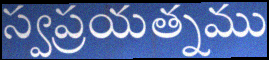
స్వప్రయత్నము